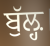
ਬੁੱਲ਼੍ਹ